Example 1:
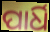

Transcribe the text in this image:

ପାର୍ଧି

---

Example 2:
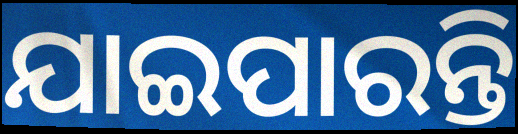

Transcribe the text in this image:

ଯାଇପାରନ୍ତି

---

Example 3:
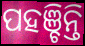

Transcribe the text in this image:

ପହଞ୍ଚିନ୍ତି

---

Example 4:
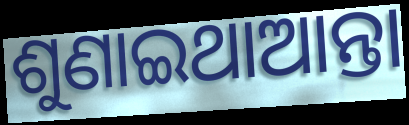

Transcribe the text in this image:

ଶୁଣାଇଥାଆନ୍ତା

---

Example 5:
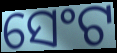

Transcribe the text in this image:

ସେଂଟ